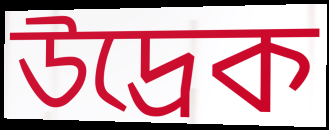
উদ্ৰেক